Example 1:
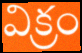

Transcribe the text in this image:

విక్రం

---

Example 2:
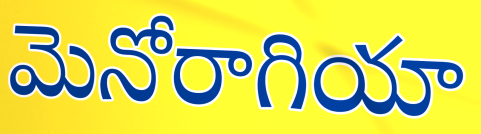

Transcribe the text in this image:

మెనోరాగియా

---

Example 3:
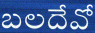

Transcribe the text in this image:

బలదేవో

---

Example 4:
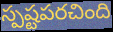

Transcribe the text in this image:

స్పష్టపరచింది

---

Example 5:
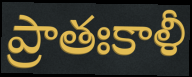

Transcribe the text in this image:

ప్రాతఃకాళీ